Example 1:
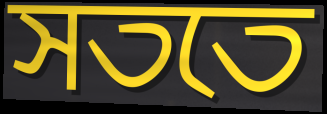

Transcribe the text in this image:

সততে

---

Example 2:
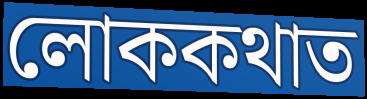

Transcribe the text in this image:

লোককথাত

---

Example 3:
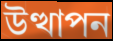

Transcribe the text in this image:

উত্থাপন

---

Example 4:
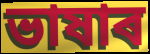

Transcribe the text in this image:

ভাষাৰ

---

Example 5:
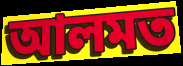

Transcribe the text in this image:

আলমত